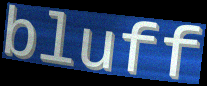
bluff